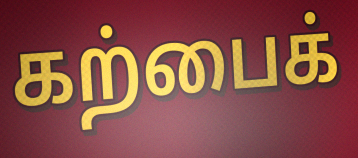
கற்பைக்